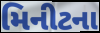
મિનીટના